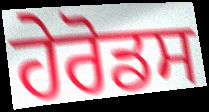
ਹੇਰੋਡਸ